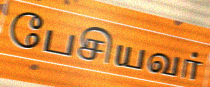
பேசியவர்